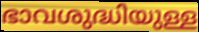
ഭാവശുദ്ധിയുള്ള